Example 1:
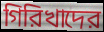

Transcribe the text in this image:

গিরিখাদের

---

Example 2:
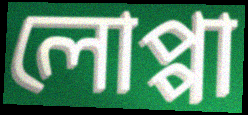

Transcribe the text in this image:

লোপ্পা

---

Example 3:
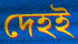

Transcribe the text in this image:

দেহই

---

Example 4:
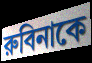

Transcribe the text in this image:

রুবিনাকে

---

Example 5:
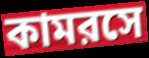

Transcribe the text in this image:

কামরসে